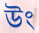
উং